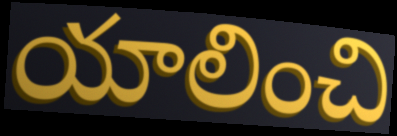
యాలించి